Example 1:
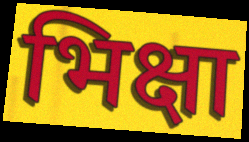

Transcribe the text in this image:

भिक्षा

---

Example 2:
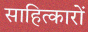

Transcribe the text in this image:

साहित्कारों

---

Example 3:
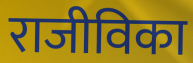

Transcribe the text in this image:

राजीविका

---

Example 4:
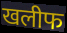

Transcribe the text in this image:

खलीफ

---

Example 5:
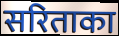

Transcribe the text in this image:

सरिताका